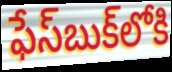
ఫేస్‌బుక్‌లోకి